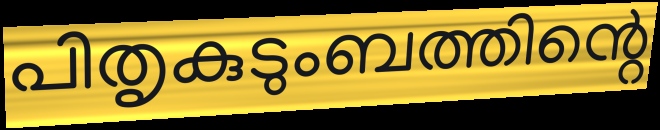
പിതൃകുടുംബത്തിന്റെ